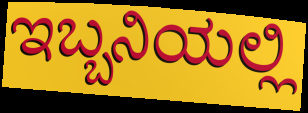
ಇಬ್ಬನಿಯಲ್ಲಿ